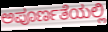
ಅಪೂರ್ಣತೆಯಲ್ಲಿ